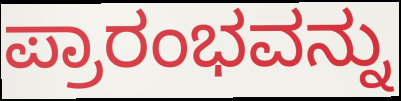
ಪ್ರಾರಂಭವನ್ನು